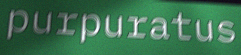
purpuratus